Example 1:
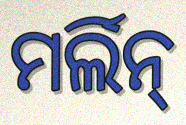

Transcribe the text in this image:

ମର୍ଲିନ୍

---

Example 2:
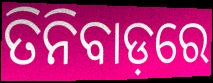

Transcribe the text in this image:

ତିନିବାଡ଼ରେ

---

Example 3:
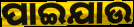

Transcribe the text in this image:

ପାଇଯାଉ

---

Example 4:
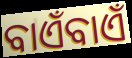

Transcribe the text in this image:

ବାଏଁବାଏଁ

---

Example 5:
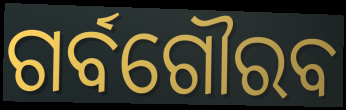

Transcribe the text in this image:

ଗର୍ବଗୌରବ